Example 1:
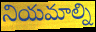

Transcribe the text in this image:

నియమాల్ని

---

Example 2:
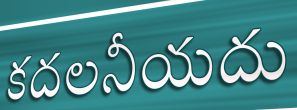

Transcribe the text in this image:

కదలనీయదు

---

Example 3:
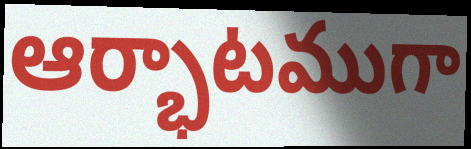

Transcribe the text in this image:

ఆర్భాటముగా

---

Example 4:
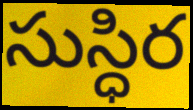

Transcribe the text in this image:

సుస్ధిర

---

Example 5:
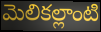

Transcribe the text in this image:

మెలికల్లాంటి